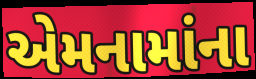
એમનામાંના